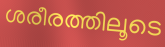
ശരീരത്തിലൂടെ